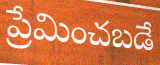
ప్రేమించబడే